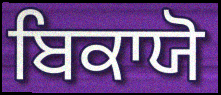
ਬਿਕਾਯੋ